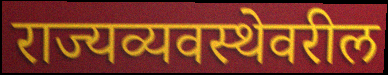
राज्यव्यवस्थेवरील